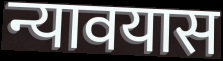
न्यावयास